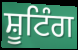
ਸ਼ੂਟਿੰਗ